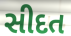
સીદત